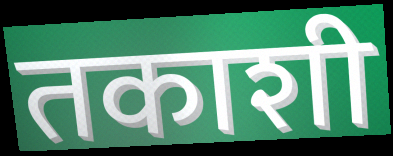
तकाशी